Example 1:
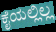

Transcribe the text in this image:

ಕೈಯಲ್ಲಿಲ್ಲ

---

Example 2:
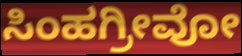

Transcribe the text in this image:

ಸಿಂಹಗ್ರೀವೋ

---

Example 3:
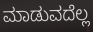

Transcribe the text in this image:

ಮಾಡುವದೆಲ್ಲ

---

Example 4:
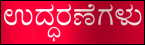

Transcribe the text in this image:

ಉದ್ಧರಣೆಗಳು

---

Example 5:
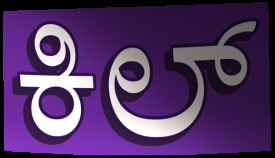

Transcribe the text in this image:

ಕಿಲ್